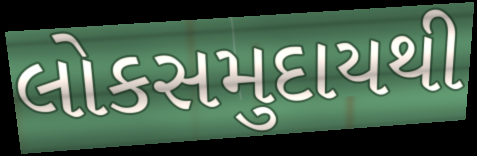
લોકસમુદાયથી